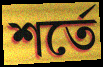
শর্তে